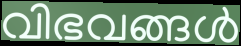
വിഭവങ്ങൾ